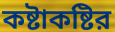
কষ্টাকষ্টির